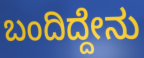
ಬಂದಿದ್ದೇನು